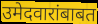
उमेदवारांबाबत